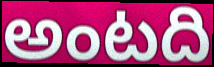
అంటది